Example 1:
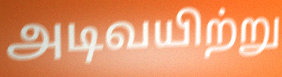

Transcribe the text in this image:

அடிவயிற்று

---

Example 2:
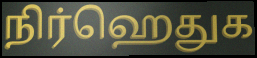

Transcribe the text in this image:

நிர்ஹெதுக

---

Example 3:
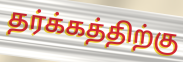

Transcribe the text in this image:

தர்க்கத்திற்கு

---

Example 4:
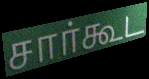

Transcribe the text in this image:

சார்கூட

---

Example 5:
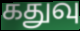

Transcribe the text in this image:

கதுவு